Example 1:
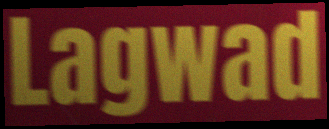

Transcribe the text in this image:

Lagwad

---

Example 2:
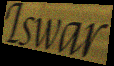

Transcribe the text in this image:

Iswar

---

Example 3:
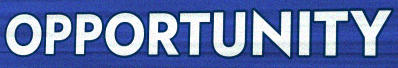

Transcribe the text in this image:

OPPORTUNITY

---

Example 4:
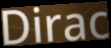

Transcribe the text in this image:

Dirac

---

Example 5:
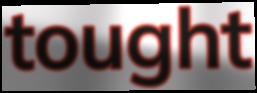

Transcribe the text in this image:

tought